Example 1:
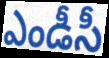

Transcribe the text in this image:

ఎండీసీ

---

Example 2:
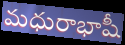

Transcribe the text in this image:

మధురాభాషీ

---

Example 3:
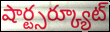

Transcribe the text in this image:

షార్ట్సర్క్యూట్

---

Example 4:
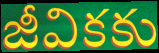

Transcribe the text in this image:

జీవికకు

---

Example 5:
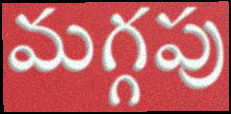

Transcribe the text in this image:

మగ్గపు